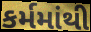
કર્મમાંથી